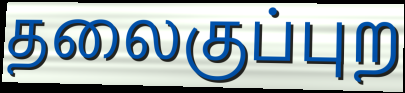
தலைகுப்புற